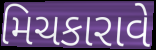
મિચકારાવે